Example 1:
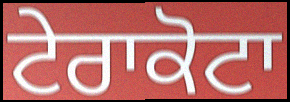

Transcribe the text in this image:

ਟੇਰਾਕੋਟਾ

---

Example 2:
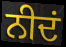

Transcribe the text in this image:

ਨੀਦਂ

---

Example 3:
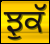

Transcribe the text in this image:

ਝੁਕੱ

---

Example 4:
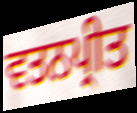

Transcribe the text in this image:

ਵਤਨਪ੍ਰੀਤ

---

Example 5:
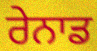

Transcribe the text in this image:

ਰੇਨਾਡ